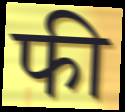
फी